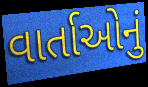
વાર્તાઓનું